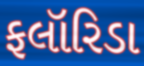
ફલૉરિડા